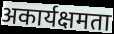
अकार्यक्षमता